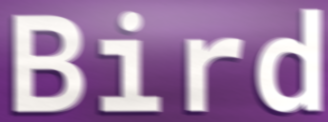
Bird